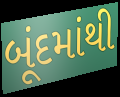
બૂંદમાંથી